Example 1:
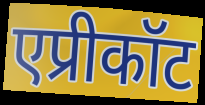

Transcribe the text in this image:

एप्रीकॉट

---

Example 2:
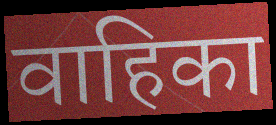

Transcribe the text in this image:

वाहिका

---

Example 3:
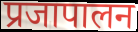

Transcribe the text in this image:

प्रजापालन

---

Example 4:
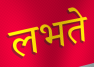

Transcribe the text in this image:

लभते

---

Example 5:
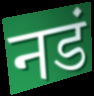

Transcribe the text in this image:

नडं